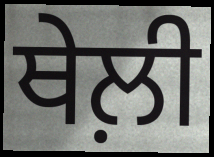
ਥੇਲ਼ੀ